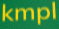
kmpl